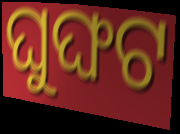
ଘୁଙ୍ଘଟ